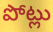
పోట్లు